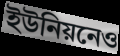
ইউনিয়নেও